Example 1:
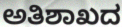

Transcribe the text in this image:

ಅತಿಶಾಖದ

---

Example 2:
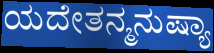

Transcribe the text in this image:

ಯದೇತನ್ಮನುಷ್ಯಾ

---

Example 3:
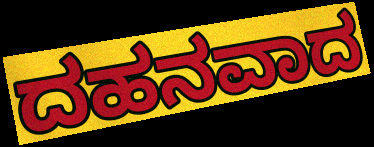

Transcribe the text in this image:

ದಹನವಾದ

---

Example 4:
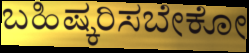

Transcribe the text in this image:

ಬಹಿಷ್ಕರಿಸಬೇಕೋ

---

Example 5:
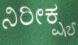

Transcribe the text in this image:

ನಿರೀಕ್ಷ್ಯ